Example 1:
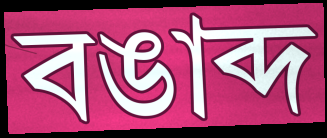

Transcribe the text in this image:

বঙাব্দ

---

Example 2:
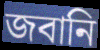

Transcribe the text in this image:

জবানি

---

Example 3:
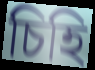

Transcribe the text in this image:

চিহি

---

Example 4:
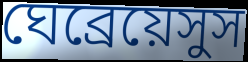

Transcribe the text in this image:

ঘেব্রেয়েসুস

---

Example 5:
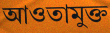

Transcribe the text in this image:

আওতামুক্ত